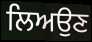
ਲਿਅਉਣ